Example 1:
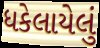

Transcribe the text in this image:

ધકેલાયેલું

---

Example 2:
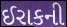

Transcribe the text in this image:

ઈરાકની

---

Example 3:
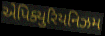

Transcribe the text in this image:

એપિક્યુરિયનિઝમ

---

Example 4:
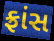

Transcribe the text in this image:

ફ્રાંસ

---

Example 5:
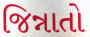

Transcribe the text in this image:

જિન્નાતો